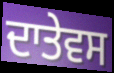
ਦਾਤੇਵਸ